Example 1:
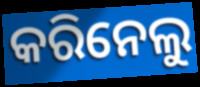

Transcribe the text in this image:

କରିନେଲୁ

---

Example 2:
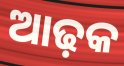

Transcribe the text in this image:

ଆଢ଼କ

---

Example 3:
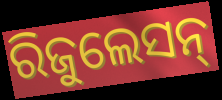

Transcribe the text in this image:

ରିଜୁଲେସନ୍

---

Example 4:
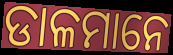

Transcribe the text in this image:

ଡାଳମାନେ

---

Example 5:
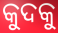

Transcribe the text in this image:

କୁଦକୁ